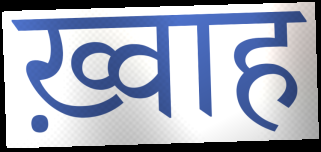
ख़्वाह